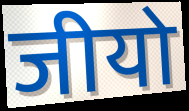
जीयो